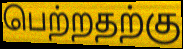
பெற்றதற்கு